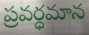
ప్రవర్ధమాన